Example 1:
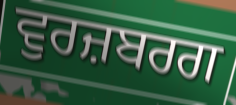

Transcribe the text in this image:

ਵੁਰਜ਼ਬਰਗ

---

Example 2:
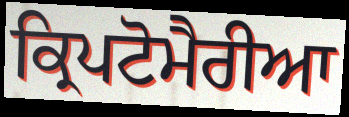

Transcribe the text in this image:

ਕ੍ਰਿਪਟੋਮੈਰੀਆ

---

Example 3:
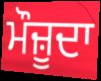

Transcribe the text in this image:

ਮੌਜ਼ੂਦਾ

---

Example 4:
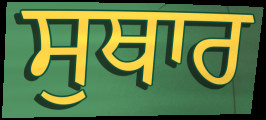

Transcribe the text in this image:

ਸੁਥਾਰ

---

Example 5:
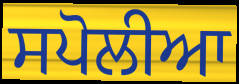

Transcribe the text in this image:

ਸਪੋਲੀਆ